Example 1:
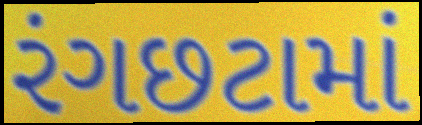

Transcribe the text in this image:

રંગછટામાં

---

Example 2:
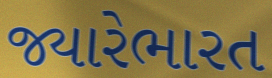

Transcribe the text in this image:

જ્યારેભારત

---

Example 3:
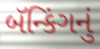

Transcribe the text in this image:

બૅન્કિંગનું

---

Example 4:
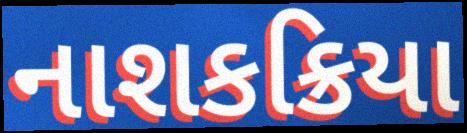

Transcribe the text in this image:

નાશકક્રિયા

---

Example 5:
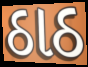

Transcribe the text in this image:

ઠાઠ